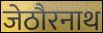
जेठौरनाथ